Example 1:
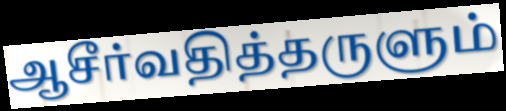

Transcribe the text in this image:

ஆசீர்வதித்தருளும்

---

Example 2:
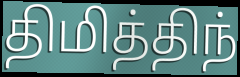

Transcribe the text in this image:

திமித்திந்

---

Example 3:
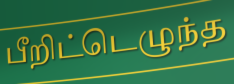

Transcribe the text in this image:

பீறிட்டெழுந்த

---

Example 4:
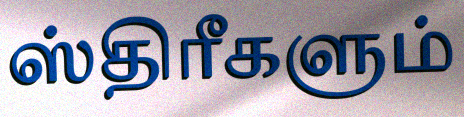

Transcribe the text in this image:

ஸ்திரீகளும்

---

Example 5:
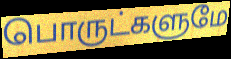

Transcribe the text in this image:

பொருட்களுமே